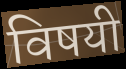
विषयी